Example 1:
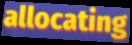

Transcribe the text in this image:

allocating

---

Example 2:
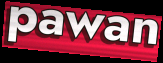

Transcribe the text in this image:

pawan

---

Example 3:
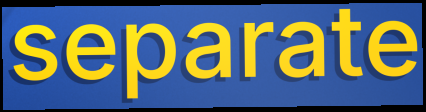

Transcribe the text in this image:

separate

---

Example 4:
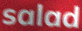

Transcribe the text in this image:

salad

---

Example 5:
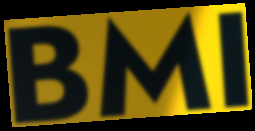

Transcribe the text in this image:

BMI